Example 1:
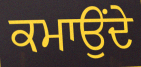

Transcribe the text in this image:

ਕਮਾਉਂਦੇ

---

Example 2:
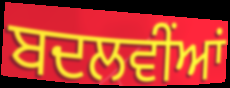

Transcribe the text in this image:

ਬਦਲਵੀਂਆਂ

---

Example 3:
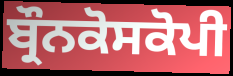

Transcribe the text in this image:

ਬ੍ਰੌਨਕੋਸਕੋਪੀ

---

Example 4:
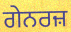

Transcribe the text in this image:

ਗੇਨਰਜ਼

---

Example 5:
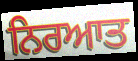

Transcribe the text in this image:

ਨਿਰਆਤ